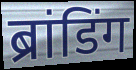
ब्रांडिंग